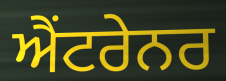
ਐਂਟਰੇਨਰ